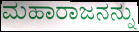
ಮಹಾರಾಜನನ್ನು